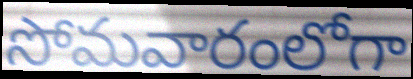
సోమవారంలోగా